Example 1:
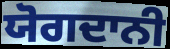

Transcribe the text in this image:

ਯੋਗਦਾਨੀ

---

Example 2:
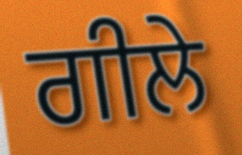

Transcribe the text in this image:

ਗੀਲੇ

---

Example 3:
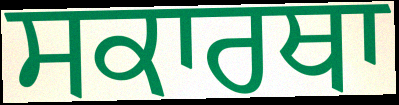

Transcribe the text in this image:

ਸਕਾਰਥਾ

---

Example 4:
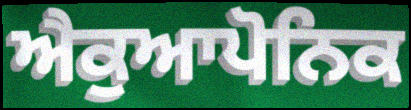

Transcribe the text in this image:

ਐਕੁਆਪੋਨਿਕ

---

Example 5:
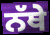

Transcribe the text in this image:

ਨੱਥੇ